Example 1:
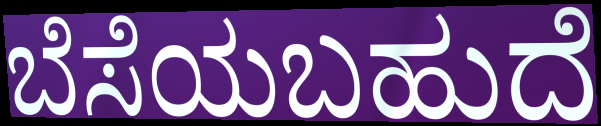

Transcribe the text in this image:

ಬೆಸೆಯಬಹುದೆ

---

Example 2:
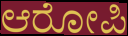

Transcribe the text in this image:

ಆರೋಪಿ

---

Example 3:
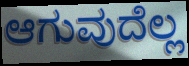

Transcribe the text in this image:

ಆಗುವುದೆಲ್ಲ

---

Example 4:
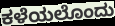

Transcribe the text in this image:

ಕಳೆಯಲೊಂದು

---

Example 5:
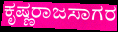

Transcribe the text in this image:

ಕೃಷ್ಣರಾಜಸಾಗರ